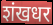
शंखधर